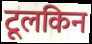
टूलकिन